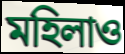
মহিলাও